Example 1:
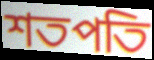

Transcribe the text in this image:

শতপতি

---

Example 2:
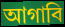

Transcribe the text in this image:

আগাবি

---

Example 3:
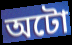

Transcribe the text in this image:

অটো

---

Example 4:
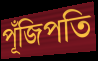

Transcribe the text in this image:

পূঁজিপতি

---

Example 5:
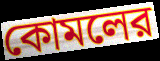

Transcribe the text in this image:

কোমলের